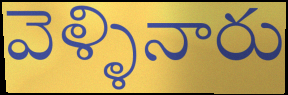
వెళ్ళినారు